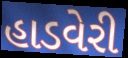
હાડવેરી